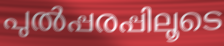
പുൽപ്പരപ്പിലൂടെ